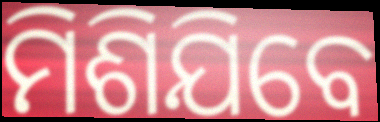
ମିଶିଯିବେ